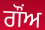
ਗੌਂਅ